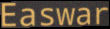
Easwar